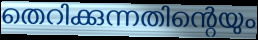
തെറിക്കുന്നതിന്റെയും